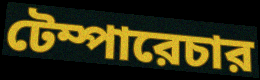
টেম্পারেচার